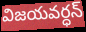
విజయవర్ధన్